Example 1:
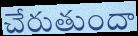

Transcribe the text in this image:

చేరుతుందా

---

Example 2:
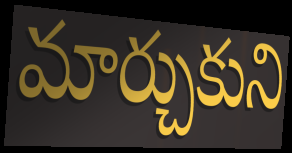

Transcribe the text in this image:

మార్చుకుని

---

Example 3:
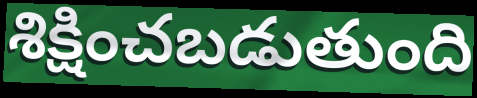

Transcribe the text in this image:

శిక్షించబడుతుంది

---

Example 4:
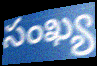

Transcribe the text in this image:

సంఖ్య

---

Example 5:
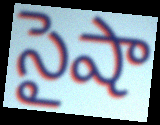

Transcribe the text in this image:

సైషా